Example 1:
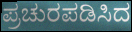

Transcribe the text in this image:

ಪ್ರಚುರಪಡಿಸಿದ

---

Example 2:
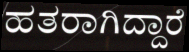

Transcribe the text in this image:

ಹತರಾಗಿದ್ದಾರೆ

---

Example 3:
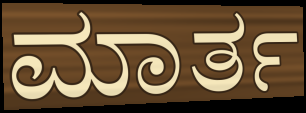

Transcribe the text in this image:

ಮಾರ್ತ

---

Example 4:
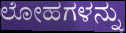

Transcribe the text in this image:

ಲೋಹಗಳನ್ನು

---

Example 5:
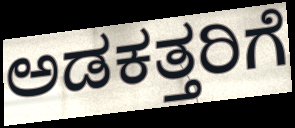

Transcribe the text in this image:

ಅಡಕತ್ತರಿಗೆ